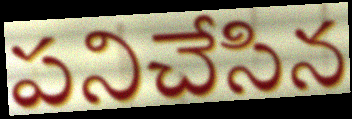
పనిచేసిన